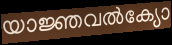
യാജ്ഞവൽക്യോ